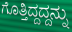
ಗೊತ್ತಿದ್ದದ್ದನ್ನು